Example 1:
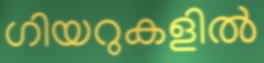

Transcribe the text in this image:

ഗിയറുകളിൽ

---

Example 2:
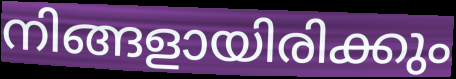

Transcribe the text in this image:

നിങ്ങളായിരിക്കും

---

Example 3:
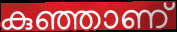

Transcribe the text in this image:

കുഞ്ഞാണ്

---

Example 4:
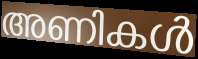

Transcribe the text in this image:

അണികൾ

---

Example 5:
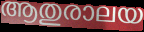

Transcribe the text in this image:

ആതുരാലയ